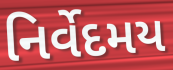
નિર્વેદમય